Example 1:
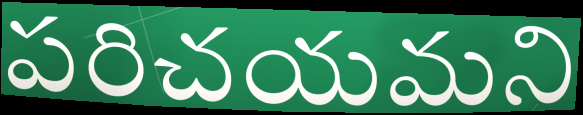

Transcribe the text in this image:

పరిచయమని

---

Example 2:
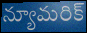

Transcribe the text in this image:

న్యూమరిక్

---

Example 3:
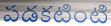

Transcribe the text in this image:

పడకటింటి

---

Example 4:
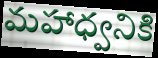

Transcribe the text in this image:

మహాధ్వనికి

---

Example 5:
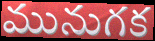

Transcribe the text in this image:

మునుగక